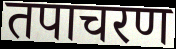
तपाचरण